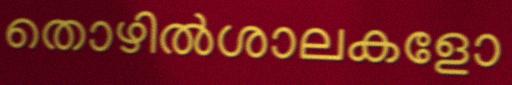
തൊഴിൽശാലകളോ